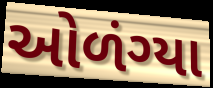
ઓળંગ્યા